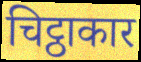
चिट्ठाकार